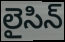
లైసిన్